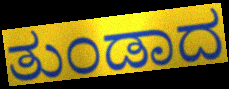
ತುಂಡಾದ